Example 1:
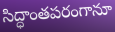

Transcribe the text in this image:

సిద్ధాంతపరంగానూ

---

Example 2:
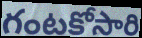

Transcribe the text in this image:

గంటకోసారి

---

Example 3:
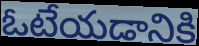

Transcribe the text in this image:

ఓటేయడానికి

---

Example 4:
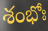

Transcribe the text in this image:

శంభోః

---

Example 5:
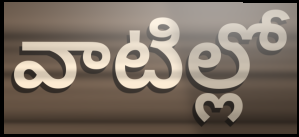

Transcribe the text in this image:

వాటిల్లో